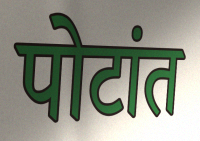
पोटांत